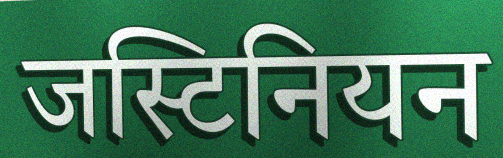
जस्टिनियन